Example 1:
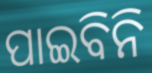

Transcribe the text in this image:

ପାଇବିନି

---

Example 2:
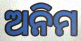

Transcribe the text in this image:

ଅନିମ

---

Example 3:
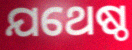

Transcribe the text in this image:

ଯଥେଷ୍ଠ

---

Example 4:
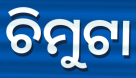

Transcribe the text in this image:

ଚିମୁଟା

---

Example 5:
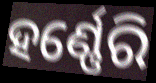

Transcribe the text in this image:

ହର୍ଣ୍ଣେରି